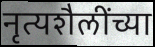
नृत्यशैलींच्या